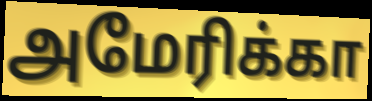
அமேரிக்கா